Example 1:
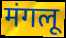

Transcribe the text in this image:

मंगलू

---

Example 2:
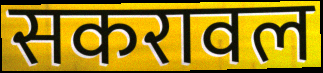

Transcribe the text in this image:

सकरावल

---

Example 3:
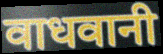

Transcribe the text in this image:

वाधवानी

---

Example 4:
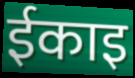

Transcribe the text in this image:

ईकाइ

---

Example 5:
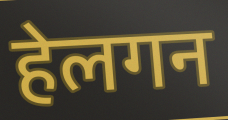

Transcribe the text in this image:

हेलगन